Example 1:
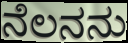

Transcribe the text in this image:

ನೆಲನನು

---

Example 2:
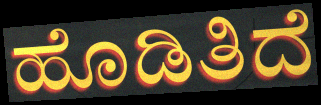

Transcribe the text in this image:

ಹೊಡಿತಿದೆ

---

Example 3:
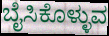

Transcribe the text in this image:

ಬೈಸಿಕೊಳ್ಳುವ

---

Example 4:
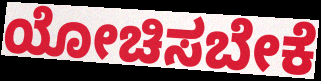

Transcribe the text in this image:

ಯೋಚಿಸಬೇಕೆ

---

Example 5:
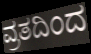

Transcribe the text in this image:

ವ್ರತದಿಂದ